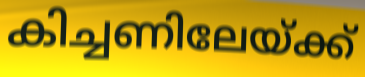
കിച്ചണിലേയ്ക്ക്